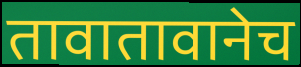
तावातावानेच